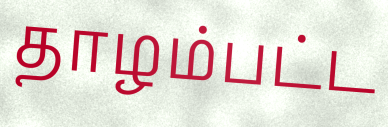
தாழம்பட்ட